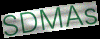
SDMAs